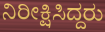
ನಿರೀಕ್ಷಿಸಿದ್ದರು